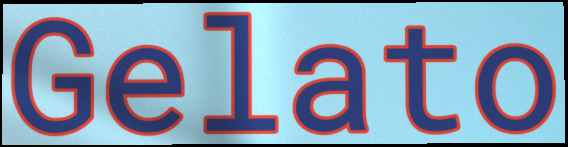
Gelato